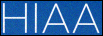
HIAA